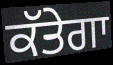
ਕੱਤੇਗਾ